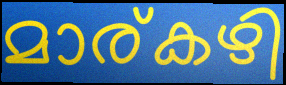
മാര്കഴി